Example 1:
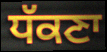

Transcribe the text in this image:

ਧੱਕਣਾ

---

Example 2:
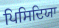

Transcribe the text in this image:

ਪਿਸਿਦਿਯਾ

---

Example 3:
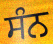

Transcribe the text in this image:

ਸੰਨ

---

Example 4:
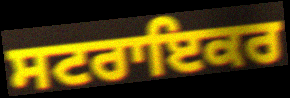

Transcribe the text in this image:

ਸਟਰਾਇਕਰ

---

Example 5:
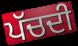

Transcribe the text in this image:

ਪੱਚਦੀ